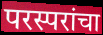
परस्परांचा